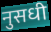
नुसधी